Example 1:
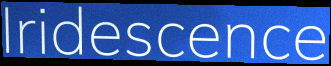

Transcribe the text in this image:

Iridescence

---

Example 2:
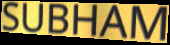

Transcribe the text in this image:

SUBHAM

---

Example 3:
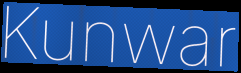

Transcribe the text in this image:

Kunwar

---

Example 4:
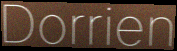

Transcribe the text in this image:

Dorrien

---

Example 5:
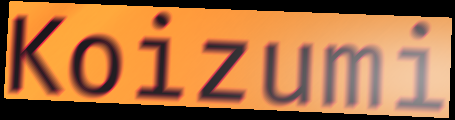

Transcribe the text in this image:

Koizumi